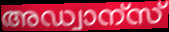
അഡ്വാന്സ്